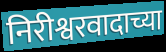
निरीश्वरवादाच्या